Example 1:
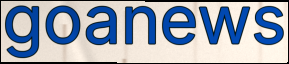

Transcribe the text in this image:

goanews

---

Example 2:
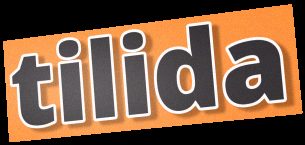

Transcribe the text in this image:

tilida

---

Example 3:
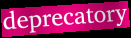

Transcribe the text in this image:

deprecatory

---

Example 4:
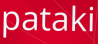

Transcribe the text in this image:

pataki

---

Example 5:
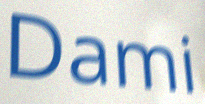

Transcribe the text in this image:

Dami